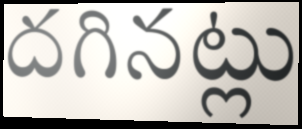
దగినట్లు